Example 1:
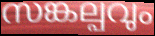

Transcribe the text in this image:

സങ്കല്പവും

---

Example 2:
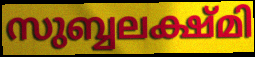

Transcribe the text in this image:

സുബ്ബലക്ഷ്മി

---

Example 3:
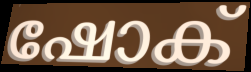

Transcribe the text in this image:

ഷോക്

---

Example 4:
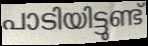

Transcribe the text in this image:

പാടിയിട്ടുണ്ട്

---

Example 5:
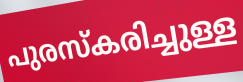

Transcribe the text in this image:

പുരസ്കരിച്ചുള്ള